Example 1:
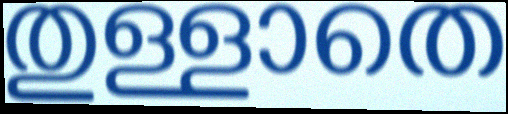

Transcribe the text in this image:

തുള്ളാതെ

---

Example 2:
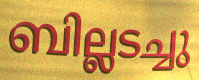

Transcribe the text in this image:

ബില്ലടച്ചു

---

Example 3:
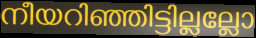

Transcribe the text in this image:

നീയറിഞ്ഞിട്ടില്ലല്ലോ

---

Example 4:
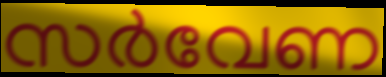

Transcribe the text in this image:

സർവേണ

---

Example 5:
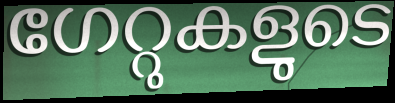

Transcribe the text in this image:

ഗേറ്റുകളുടെ